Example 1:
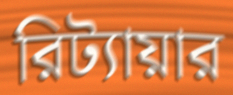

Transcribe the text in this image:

রিট্যায়ার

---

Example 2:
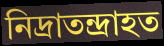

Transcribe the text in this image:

নিদ্রাতন্দ্রাহত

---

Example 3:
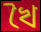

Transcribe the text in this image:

খৈ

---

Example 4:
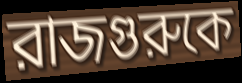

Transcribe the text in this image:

রাজগুরুকে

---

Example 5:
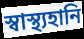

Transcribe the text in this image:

স্বাস্থ্যহানি